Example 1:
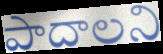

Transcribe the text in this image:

పాదాలని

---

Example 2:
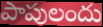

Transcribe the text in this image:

పాపులందు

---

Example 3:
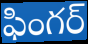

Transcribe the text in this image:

ఫింగర్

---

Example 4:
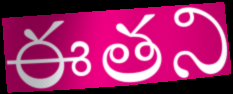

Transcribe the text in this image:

ఈతని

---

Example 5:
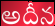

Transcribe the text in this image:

అదీన